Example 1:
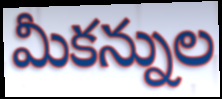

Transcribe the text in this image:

మీకన్నుల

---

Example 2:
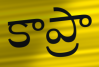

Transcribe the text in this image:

కాప్రా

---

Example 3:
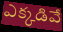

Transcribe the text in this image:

ఎక్కడివే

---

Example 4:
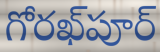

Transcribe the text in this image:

గోరఖ్‌పూర్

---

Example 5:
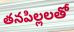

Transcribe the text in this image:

తనపిల్లలతో